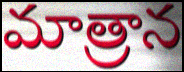
మాత్రాన